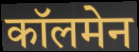
कॉलमेन